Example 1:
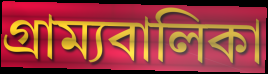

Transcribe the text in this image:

গ্রাম্যবালিকা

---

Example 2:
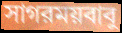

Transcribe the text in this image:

সাগরময়বাবু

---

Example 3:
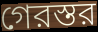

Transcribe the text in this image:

গেরস্তর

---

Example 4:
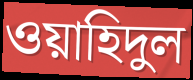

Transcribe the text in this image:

ওয়াহিদুল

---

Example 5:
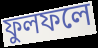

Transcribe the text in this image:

ফুলফলে